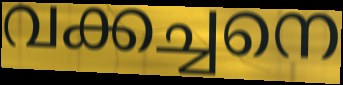
വക്കച്ചനെ